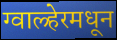
ग्वाल्हेरमधून